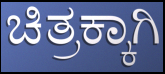
ಚಿತ್ರಕ್ಕಾಗಿ